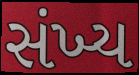
સંખ્ય